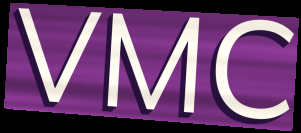
VMC